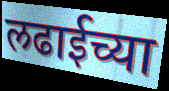
लढाईच्या